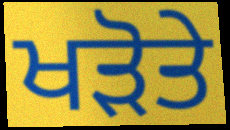
ਖੜੋਤੇ